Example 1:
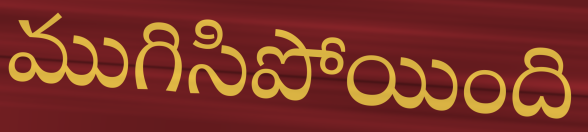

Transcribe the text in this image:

ముగిసిపోయింది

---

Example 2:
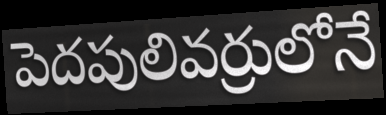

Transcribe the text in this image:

పెదపులివర్రులోనే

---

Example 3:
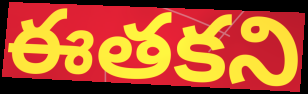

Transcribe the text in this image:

ఈతకని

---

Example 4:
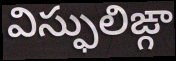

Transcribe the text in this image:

విస్ఫులిఙ్గా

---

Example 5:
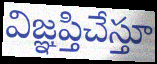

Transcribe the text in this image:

విజ్ఞప్తిచేస్తూ